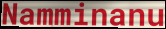
Namminanu